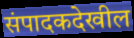
संपादकदेखील